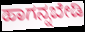
ಹಾಗನ್ನಬೇಡಿ